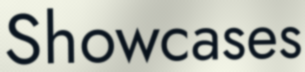
Showcases